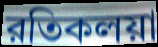
রতিকলয়া